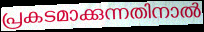
പ്രകടമാക്കുന്നതിനാൽ